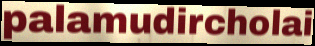
palamudircholai